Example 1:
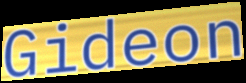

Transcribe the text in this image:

Gideon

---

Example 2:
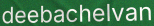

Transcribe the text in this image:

deebachelvan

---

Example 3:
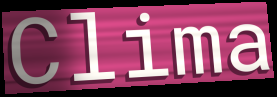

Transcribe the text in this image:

Clima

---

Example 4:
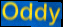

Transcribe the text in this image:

Oddy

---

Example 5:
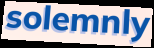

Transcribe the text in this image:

solemnly